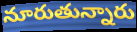
నూరుతున్నారు